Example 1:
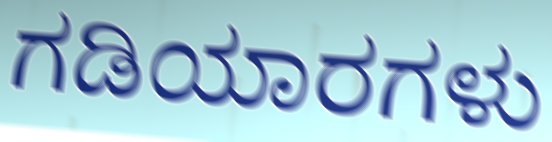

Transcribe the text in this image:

ಗಡಿಯಾರಗಳು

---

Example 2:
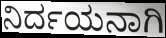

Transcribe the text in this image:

ನಿರ್ದಯನಾಗಿ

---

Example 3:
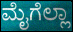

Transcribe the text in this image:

ಮೈಗೆಲ್ಲಾ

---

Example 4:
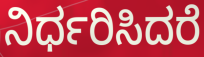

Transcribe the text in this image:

ನಿರ್ಧರಿಸಿದರೆ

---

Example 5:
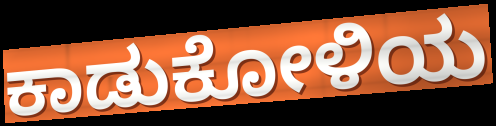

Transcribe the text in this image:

ಕಾಡುಕೋಳಿಯ